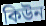
কিউন